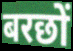
बरछों